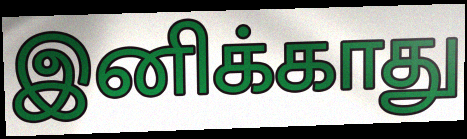
இனிக்காது